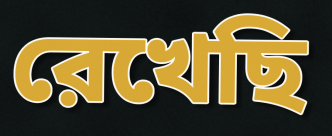
রেখেছি